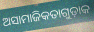
ଅସାମାଜିକତାଗୁଡ଼ାକ